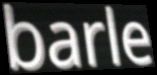
barle